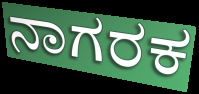
ನಾಗರಕ